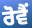
ਰੋਵੈਂ